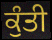
ਕੁੰਤੀ